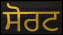
ਸੋਰਟ